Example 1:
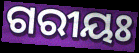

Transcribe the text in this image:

ଗରୀୟଃ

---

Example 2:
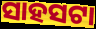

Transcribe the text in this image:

ସାହସଟା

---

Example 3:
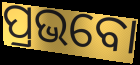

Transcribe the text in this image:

ପ୍ରଭବୋ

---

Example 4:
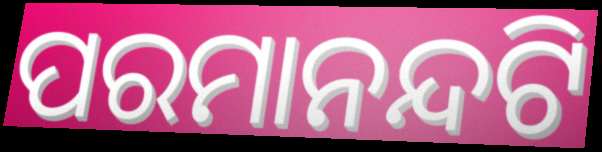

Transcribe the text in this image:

ପରମାନନ୍ଦଟି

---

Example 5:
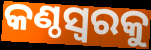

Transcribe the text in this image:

କଣ୍ଠସ୍ୱରକୁ